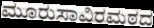
ಮೂರುಸಾವಿರಮಠದ